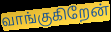
வாங்குகிறேன்